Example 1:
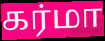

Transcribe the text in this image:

கர்மா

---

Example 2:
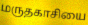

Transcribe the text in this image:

மருதகாசியை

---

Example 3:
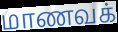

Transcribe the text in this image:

மாணவக்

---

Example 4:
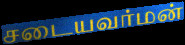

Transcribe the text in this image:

சடையவர்மன்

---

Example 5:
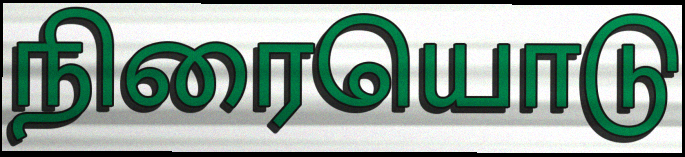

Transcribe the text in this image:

நிரையொடு